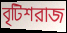
বৃটিশরাজ